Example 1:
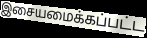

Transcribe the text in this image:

இசையமைக்கப்பட்ட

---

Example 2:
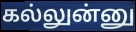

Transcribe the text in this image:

கல்லுன்னு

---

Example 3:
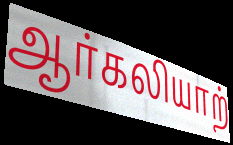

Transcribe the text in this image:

ஆர்கலியாற்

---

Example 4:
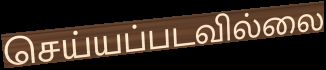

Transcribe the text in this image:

செய்யப்படவில்லை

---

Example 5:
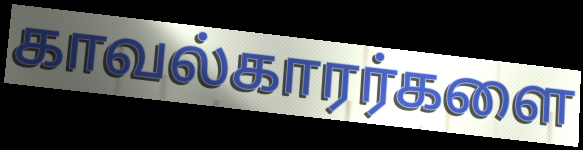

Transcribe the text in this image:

காவல்காரர்களை